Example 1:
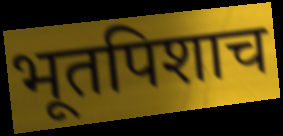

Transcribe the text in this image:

भूतपिशाच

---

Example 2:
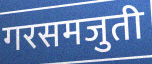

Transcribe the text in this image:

गरसमजुती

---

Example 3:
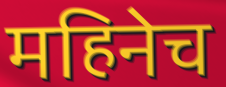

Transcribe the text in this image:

महिनेच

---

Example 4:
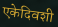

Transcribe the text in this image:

एकेदिवशी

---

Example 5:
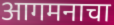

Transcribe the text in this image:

आगमनाचा